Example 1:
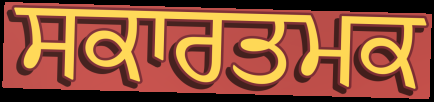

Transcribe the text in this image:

ਸਕਾਰਤਮਕ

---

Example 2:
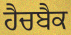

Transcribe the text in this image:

ਹੈਚਬੈਕ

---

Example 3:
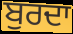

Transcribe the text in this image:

ਬੁਰਦਾ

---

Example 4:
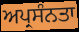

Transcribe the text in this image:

ਅਪ੍ਰਸੰਨਤਾ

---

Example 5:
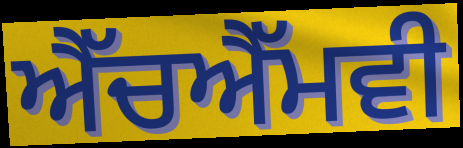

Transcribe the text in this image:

ਐੱਚਐੱਮਵੀ